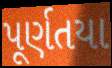
પૂર્ણતયા